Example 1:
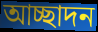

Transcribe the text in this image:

আচ্ছাদন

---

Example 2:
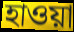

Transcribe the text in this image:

হাওয়া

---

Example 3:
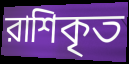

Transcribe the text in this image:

রাশিকৃত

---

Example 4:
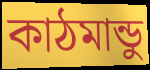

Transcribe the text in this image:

কাঠমান্ডু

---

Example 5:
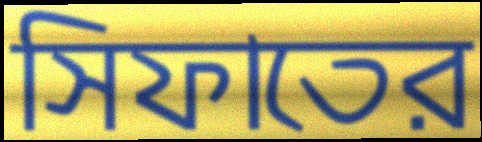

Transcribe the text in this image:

সিফাতের